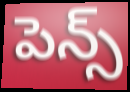
పెన్స్